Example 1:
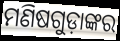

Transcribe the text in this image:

ମଣିଷଗୁଡ଼ାଙ୍କର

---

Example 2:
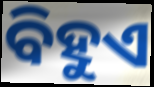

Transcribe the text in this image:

ବିହୁଏ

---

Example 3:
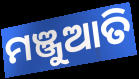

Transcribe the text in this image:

ମଞ୍ଜୁଆତି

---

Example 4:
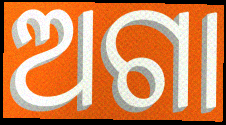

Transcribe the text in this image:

ଅଗା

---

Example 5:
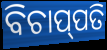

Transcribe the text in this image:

ବିଚାପ୍‌ପତି